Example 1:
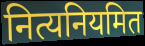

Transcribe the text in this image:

नित्यनियमित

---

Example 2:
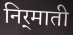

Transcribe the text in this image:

निर्माती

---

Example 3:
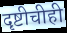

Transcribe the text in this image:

दृष्टीचीही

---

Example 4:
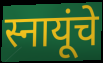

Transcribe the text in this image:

स्नायूंचे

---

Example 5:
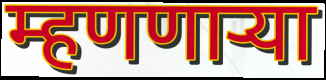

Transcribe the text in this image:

म्हणणार्‍या